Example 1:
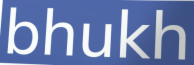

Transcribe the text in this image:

bhukh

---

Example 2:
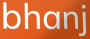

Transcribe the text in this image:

bhanj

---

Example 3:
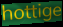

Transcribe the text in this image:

hottige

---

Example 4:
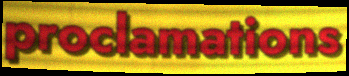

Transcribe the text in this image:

proclamations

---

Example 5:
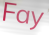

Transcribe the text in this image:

Fay